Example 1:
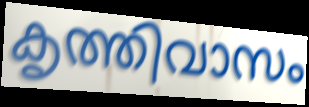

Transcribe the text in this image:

കൃത്തിവാസം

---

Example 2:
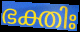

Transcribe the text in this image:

ഭക്തിഃ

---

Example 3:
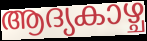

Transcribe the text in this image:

ആദ്യകാഴ്ച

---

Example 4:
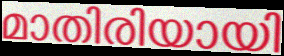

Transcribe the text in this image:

മാതിരിയായി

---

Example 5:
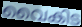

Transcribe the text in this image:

വൈകിട